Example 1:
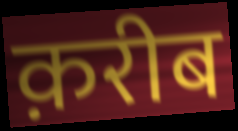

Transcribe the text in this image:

क़रीब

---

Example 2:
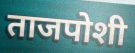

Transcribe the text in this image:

ताजपोशी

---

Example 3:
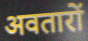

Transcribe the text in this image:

अवतारों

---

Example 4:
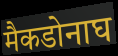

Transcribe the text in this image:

मैकडोनाघ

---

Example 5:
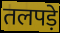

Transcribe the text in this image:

तलपड़े